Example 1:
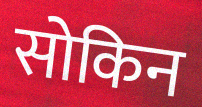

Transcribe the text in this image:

सोकिन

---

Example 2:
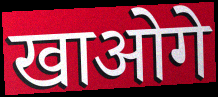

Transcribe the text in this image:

खाओगे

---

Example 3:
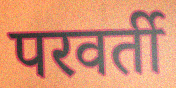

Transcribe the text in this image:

परवर्ती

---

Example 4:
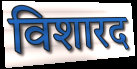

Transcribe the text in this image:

विशारद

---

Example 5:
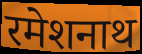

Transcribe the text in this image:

रमेशनाथ